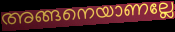
അങ്ങനെയാണല്ലേ